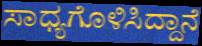
ಸಾಧ್ಯಗೊಳಿಸಿದ್ದಾನೆ